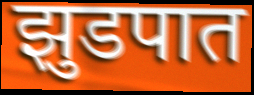
झुडपात